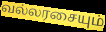
வல்லரசையும்